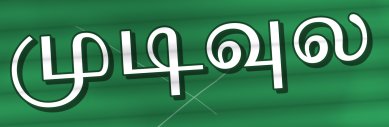
முடிவுல